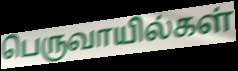
பெருவாயில்கள்